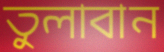
তুলাবান